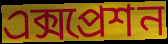
এক্সপ্রেশন